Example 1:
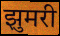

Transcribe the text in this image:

झुमरी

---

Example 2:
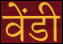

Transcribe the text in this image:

वेंडी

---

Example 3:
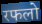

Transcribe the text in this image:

रफलो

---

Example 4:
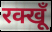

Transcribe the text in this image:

रक्खूँ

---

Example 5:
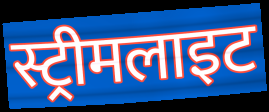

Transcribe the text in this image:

स्ट्रीमलाइट